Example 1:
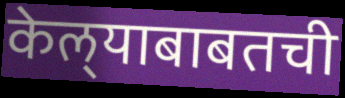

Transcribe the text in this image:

केल्याबाबतची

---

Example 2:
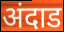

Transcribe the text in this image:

अंदाड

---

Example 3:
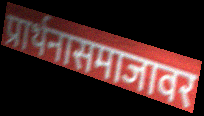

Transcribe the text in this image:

प्रार्थनासमाजावर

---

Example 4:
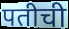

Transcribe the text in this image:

पतीची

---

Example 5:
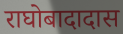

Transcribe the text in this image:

राघोबादादास